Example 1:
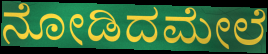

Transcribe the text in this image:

ನೋಡಿದಮೇಲೆ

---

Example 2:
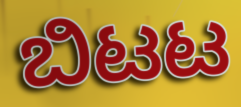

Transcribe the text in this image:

ಬಿಟಟ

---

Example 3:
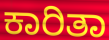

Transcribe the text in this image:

ಕಾರಿತಾ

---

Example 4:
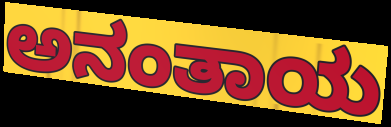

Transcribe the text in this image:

ಅನಂತಾಯ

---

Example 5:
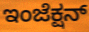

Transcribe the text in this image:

ಇಂಜೆಕ್ಷನ್